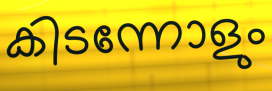
കിടന്നോളും